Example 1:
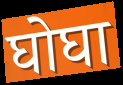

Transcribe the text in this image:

घोघा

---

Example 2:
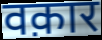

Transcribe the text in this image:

वक़ार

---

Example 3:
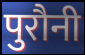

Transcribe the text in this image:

पुरौनी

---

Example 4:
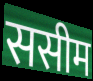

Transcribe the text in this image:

ससीम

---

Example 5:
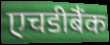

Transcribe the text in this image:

एचडीबैंक